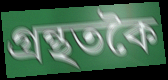
গ্ৰন্থতকৈ